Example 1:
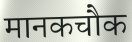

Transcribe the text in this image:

मानकचौक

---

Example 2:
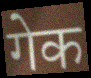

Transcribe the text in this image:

गेक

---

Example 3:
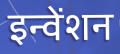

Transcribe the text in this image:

इन्वेंशन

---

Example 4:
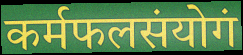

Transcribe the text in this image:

कर्मफलसंयोगं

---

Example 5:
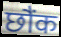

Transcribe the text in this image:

छौंक